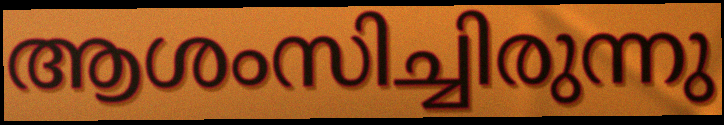
ആശംസിച്ചിരുന്നു